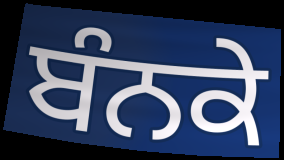
ਬੰਨਕੇ